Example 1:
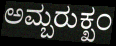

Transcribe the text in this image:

ಅಮ್ಬರುಕ್ಖಂ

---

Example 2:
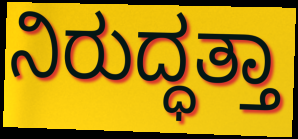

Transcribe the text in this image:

ನಿರುದ್ಧತ್ತಾ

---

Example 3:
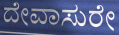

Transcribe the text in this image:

ದೇವಾಸುರೇ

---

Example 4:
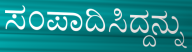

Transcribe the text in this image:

ಸಂಪಾದಿಸಿದ್ದನ್ನು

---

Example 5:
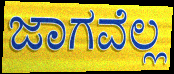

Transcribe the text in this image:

ಜಾಗವೆಲ್ಲ